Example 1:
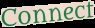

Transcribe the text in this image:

Connect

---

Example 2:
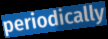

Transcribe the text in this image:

periodically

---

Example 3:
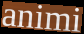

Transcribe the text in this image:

animi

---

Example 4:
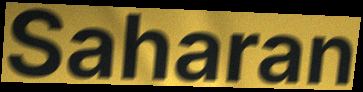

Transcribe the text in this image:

Saharan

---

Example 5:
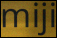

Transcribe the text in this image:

miji